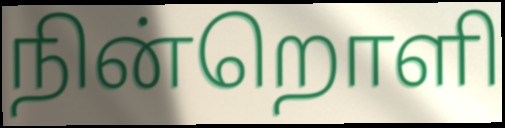
நின்றொளி